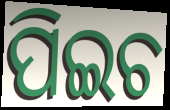
ପିଇଚ